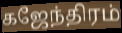
கஜேந்திரம்